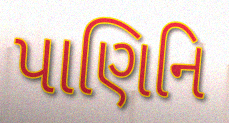
પાણિનિ